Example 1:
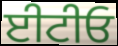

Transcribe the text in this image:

ਈਟੀਓ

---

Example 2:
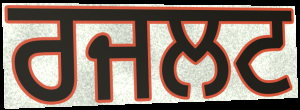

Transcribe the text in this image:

ਰਜਲਟ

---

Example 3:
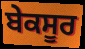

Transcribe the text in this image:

ਬੇਕਸੂਰ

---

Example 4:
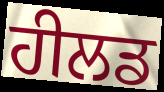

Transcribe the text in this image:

ਹੀਲਡ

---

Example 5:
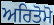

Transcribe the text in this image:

ਅਰਿਤੋਮੋ